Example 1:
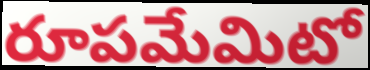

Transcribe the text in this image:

రూపమేమిటో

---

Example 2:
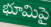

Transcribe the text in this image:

భూమిపై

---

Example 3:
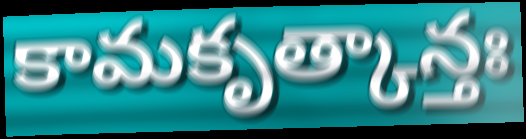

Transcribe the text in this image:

కామకృత్కాన్తః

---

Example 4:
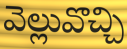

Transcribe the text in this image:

వెల్లువొచ్చి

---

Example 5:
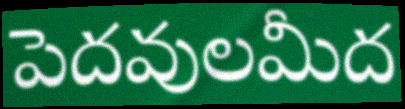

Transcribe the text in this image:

పెదవులమీద